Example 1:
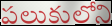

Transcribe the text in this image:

పలుకులోని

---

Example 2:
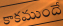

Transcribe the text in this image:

కాకముందే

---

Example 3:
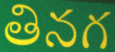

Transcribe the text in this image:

తినగ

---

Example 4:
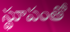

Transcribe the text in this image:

స్థూపంతో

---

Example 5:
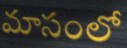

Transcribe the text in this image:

మాసంలో